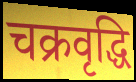
चक्रवृद्धि